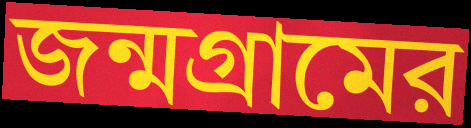
জন্মগ্রামের